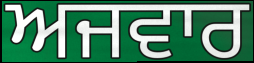
ਅਜਵਾਰ